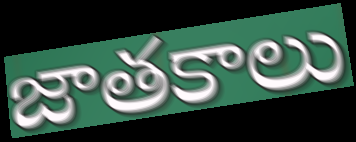
జాతకాలు